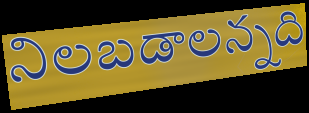
నిలబడాలన్నది